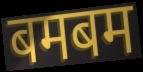
बमबम